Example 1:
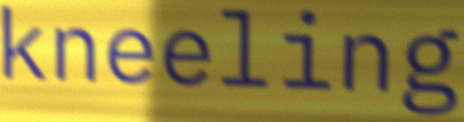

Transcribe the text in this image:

kneeling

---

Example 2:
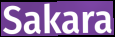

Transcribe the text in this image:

Sakara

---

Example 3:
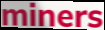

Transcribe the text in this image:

miners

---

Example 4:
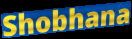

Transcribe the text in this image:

Shobhana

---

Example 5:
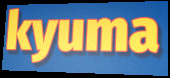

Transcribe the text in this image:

kyuma